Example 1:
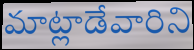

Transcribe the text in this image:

మాట్లాడేవారిని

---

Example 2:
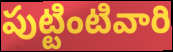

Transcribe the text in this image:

పుట్టింటివారి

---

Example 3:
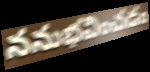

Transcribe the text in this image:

ననుభవించడం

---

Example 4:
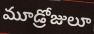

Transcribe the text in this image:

మూడ్రోజులూ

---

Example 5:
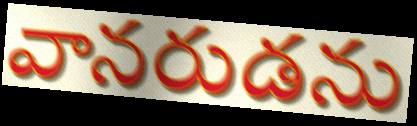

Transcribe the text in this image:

వానరుడను